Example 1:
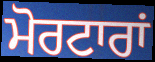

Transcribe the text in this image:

ਮੋਰਟਾਰਾਂ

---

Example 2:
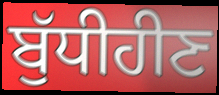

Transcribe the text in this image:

ਬੁੱਧੀਹੀਣ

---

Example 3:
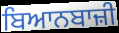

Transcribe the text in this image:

ਬਿਆਨਬਾਜ਼ੀ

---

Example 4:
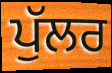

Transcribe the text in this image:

ਪੁੱਲਰ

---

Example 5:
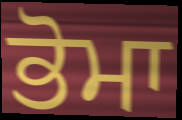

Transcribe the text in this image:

ਭੋਮਾ